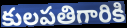
కులపతిగారికి